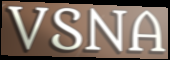
VSNA